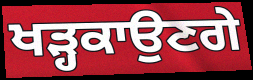
ਖੜ੍ਹਕਾਉਣਗੇ